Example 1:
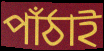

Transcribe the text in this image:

পাঁঠাই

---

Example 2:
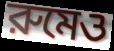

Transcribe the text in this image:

রুমেও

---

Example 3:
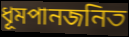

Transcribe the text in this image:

ধূমপানজনিত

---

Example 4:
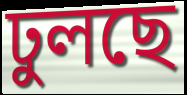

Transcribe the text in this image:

ঢুলছে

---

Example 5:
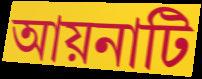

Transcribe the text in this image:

আয়নাটি